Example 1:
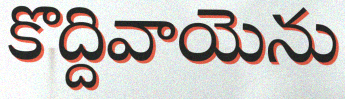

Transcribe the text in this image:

కొద్దివాయెను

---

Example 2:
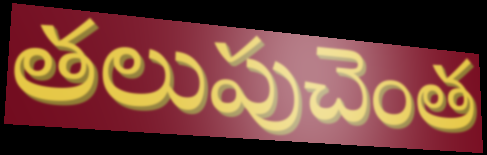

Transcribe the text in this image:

తలుపుచెంత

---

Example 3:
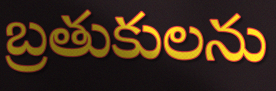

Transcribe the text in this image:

బ్రతుకులను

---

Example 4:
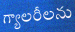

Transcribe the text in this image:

గ్యాలరీలను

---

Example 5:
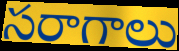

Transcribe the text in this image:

సరాగాలు